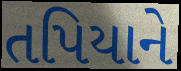
તપિયાને